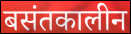
बसंतकालीन